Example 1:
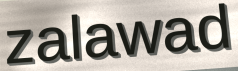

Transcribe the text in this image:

zalawad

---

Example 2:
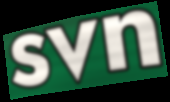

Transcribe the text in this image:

svn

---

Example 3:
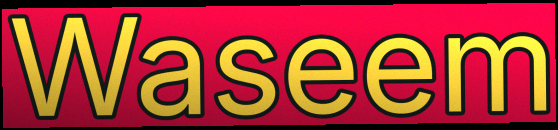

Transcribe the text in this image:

Waseem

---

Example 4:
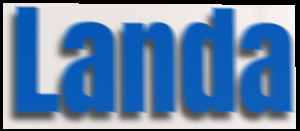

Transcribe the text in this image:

Landa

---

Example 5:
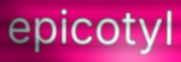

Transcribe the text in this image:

epicotyl